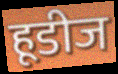
हूडीज